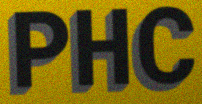
PHC